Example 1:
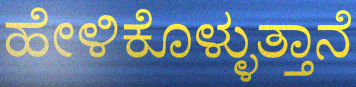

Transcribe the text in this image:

ಹೇಳಿಕೊಳ್ಳುತ್ತಾನೆ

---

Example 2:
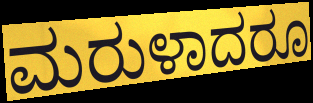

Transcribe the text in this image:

ಮರುಳಾದರೂ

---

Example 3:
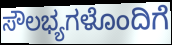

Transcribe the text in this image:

ಸೌಲಭ್ಯಗಳೊಂದಿಗೆ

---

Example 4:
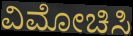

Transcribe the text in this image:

ವಿಮೋಚಿಸಿ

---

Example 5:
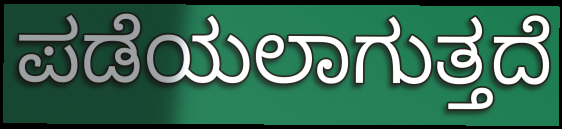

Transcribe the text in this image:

ಪಡೆಯಲಾಗುತ್ತದೆ